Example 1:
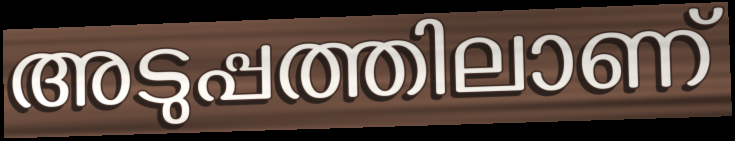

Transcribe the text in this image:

അടുപ്പത്തിലാണ്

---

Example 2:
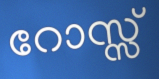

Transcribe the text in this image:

റോസ്സ്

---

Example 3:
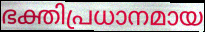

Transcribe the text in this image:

ഭക്തിപ്രധാനമായ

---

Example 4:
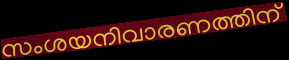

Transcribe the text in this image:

സംശയനിവാരണത്തിന്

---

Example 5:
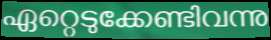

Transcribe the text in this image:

ഏറ്റെടുക്കേണ്ടിവന്നു